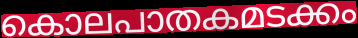
കൊലപാതകമടക്കം